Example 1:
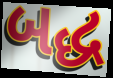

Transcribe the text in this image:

બદ્ધ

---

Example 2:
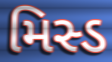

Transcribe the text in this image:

મિસ્ડ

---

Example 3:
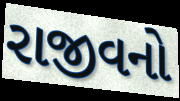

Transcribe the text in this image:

રાજીવનો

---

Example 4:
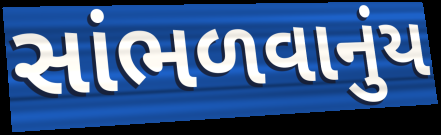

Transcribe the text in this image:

સાંભળવાનુંય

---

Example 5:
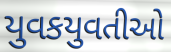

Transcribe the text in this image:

યુવકયુવતીઓ